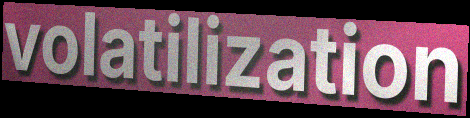
volatilization